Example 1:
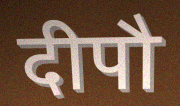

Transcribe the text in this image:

दीपौ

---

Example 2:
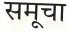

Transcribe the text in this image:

समूचा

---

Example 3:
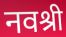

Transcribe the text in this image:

नवश्री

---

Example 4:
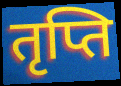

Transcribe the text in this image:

तृप्ति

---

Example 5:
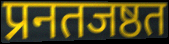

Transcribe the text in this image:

प्रनतजष्ठत